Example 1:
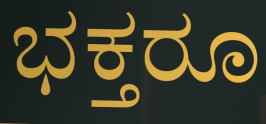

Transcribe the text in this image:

ಭಕ್ತರೂ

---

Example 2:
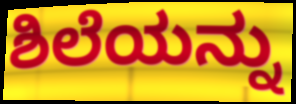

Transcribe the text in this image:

ಶಿಲೆಯನ್ನು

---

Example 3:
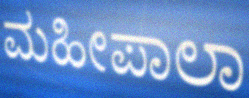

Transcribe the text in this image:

ಮಹೀಪಾಲಾ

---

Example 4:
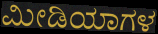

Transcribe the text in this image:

ಮೀಡಿಯಾಗಳ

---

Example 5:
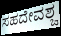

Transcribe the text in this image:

ಸಹದೇವಶ್ಚ